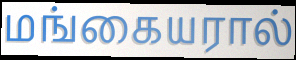
மங்கையரால்